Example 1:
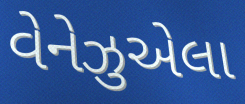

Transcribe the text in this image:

વેનેઝુએલા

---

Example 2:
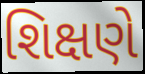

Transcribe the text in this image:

શિક્ષણે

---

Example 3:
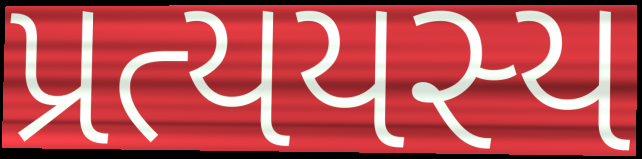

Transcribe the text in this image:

પ્રત્યયસ્ય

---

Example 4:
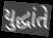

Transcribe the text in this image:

યુદ્ધાંતે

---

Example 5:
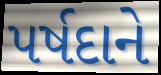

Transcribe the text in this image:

પર્ષદાને